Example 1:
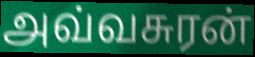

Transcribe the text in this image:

அவ்வசுரன்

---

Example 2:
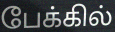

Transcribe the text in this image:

பேக்கில்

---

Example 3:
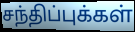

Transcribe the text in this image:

சந்திப்புக்கள்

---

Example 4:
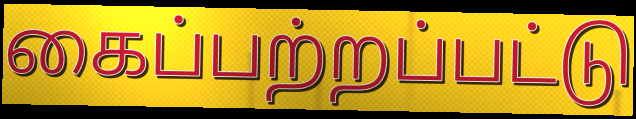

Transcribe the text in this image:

கைப்பற்றப்பட்டு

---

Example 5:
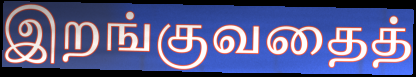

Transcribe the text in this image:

இறங்குவதைத்